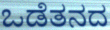
ಒಡೆತನದ